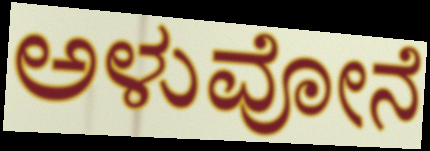
ಅಳುವೋನೆ